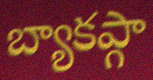
బ్యాకప్గా